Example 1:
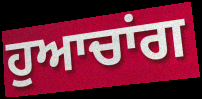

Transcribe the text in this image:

ਹੁਆਚਾਂਗ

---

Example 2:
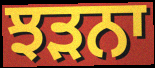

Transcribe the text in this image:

ਝੜਨਾ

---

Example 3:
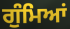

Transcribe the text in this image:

ਗੁੰਮਿਆਂ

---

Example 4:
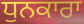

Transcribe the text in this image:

ਧੁਨਕਾਰਾ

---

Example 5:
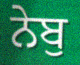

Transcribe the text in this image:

ਨੇਬੁ